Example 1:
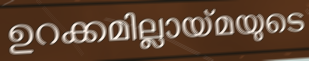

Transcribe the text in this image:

ഉറക്കമില്ലായ്മയുടെ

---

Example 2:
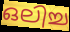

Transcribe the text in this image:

ഒലിച്ച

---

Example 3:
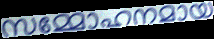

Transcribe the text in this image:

സമ്മോഹനമായ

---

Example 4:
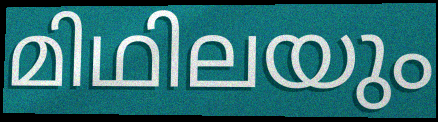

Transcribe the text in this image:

മിഥിലയും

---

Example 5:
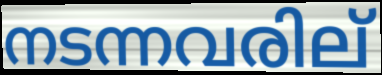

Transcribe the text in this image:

നടന്നവരില്